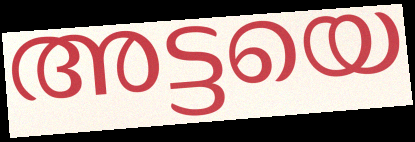
അട്ടയെ